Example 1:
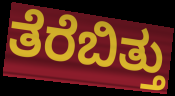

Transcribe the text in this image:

ತೆರೆಬಿತ್ತು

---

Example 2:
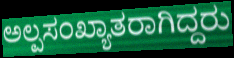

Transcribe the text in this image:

ಅಲ್ಪಸಂಖ್ಯಾತರಾಗಿದ್ದರು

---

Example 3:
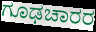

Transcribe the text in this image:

ಗೂಢಚಾರರ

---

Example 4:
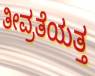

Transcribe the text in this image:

ತೀವ್ರತೆಯತ್ತ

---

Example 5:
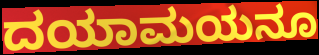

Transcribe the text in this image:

ದಯಾಮಯನೂ